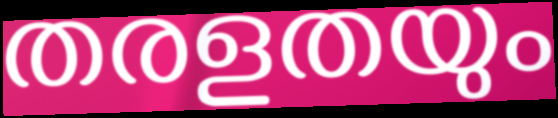
തരളതയും